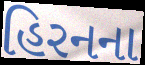
હિરનના